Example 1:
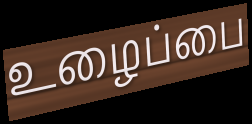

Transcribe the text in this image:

உழைப்பை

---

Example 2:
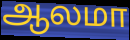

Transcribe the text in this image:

ஆலமா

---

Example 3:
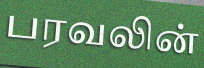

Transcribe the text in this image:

பரவலின்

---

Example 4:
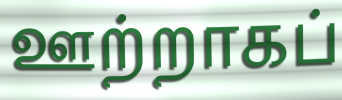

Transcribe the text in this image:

ஊற்றாகப்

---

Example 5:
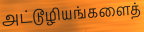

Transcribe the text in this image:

அட்டூழியங்களைத்